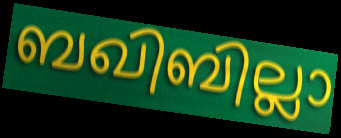
ബഖിബില്ലാ